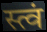
स्त्वं